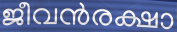
ജീവൻരക്ഷാ